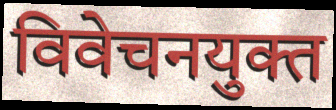
विवेचनयुक्त